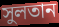
সুলতান